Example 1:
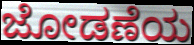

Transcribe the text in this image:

ಜೋಡಣೆಯ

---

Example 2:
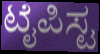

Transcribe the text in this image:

ಟೈಪಿಸ್ಟ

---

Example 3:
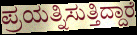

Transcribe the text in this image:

ಪ್ರಯತ್ನಿಸುತ್ತಿದ್ದಾರೆ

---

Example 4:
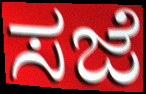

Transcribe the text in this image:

ಸಜೆ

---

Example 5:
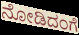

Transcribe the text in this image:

ನೋಡಿದಂಗೆ